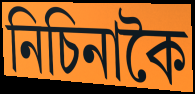
নিচিনাকৈ